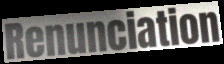
Renunciation